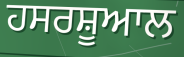
ਹਸਰਸ਼ੂਆਲ